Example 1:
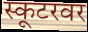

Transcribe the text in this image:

स्कूटरवर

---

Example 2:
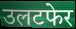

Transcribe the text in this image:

उलटफेर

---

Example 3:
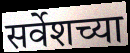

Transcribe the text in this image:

सर्वेशच्या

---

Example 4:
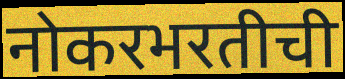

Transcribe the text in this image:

नोकरभरतीची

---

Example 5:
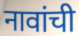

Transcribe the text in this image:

नावांची